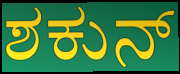
ಶಕುನ್